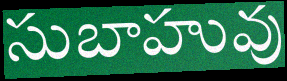
సుబాహువు